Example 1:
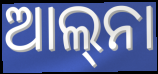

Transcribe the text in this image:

ଆଲ୍‍ନା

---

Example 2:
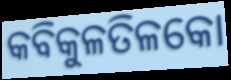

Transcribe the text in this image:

କବିକୁଳତିଳକୋ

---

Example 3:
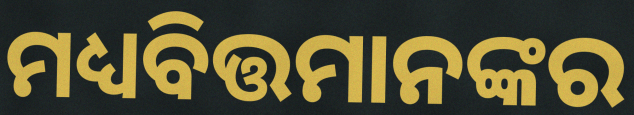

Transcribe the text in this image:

ମଧ୍ୟବିତ୍ତମାନଙ୍କର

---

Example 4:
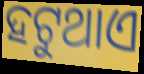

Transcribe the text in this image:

ହଟୁଥାଏ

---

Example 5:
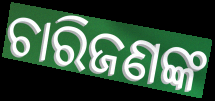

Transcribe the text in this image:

ଚାରିଜଣଙ୍କ